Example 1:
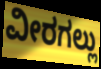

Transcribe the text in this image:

ವೀರಗಲ್ಲು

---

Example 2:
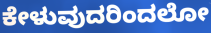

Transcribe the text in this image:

ಕೇಳುವುದರಿಂದಲೋ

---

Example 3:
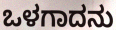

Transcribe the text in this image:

ಒಳಗಾದನು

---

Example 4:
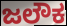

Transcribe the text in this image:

ಜಲೌಕ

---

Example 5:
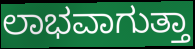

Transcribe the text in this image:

ಲಾಭವಾಗುತ್ತಾ